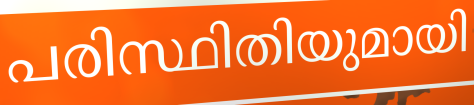
പരിസ്ഥിതിയുമായി